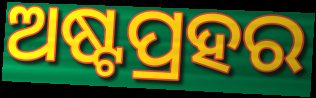
ଅଷ୍ଟପ୍ରହର